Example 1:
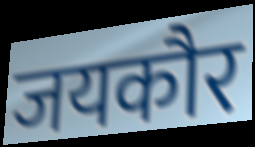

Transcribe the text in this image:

जयकौर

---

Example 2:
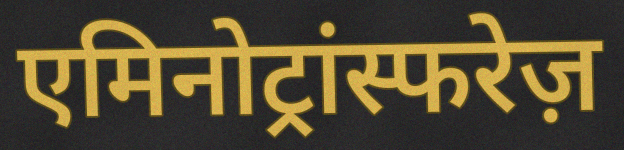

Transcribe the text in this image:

एमिनोट्रांस्फरेज़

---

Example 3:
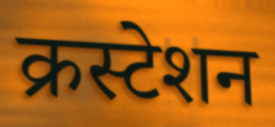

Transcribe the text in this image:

क्रस्टेशन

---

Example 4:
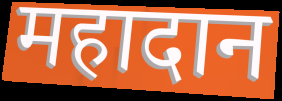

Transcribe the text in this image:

महादान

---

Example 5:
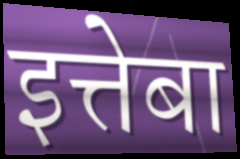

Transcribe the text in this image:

इत्तेबा